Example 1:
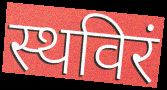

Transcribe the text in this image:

स्थविरं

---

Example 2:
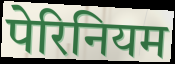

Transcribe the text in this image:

पेरिनियम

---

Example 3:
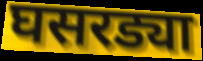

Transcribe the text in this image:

घसरड्या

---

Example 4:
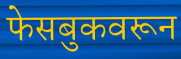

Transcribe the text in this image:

फेसबुकवरून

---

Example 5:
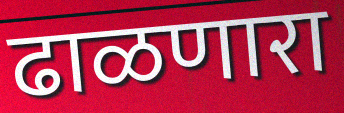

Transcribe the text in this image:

ढाळणारा